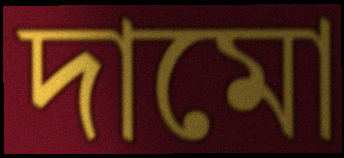
দামো